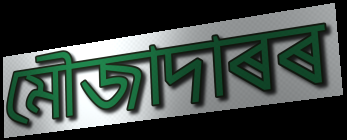
মৌজাদাৰৰ